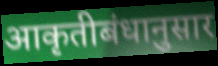
आकृतीबंधानुसार